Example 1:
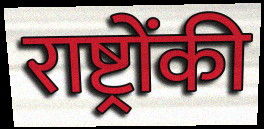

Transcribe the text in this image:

राष्ट्रोंकी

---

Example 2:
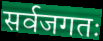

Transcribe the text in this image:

सर्वजगतः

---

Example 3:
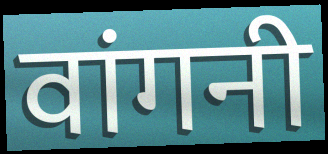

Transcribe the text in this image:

वांगनी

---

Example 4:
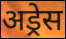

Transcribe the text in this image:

अड्रेस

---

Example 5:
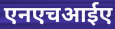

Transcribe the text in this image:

एनएचआईए